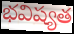
భవిష్యత